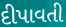
દીપાવતી